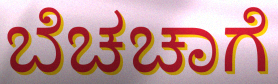
ಬೆಚಚಾಗೆ